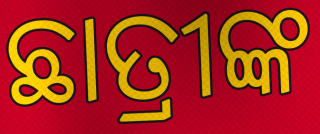
ଛାତ୍ରୀଙ୍କ